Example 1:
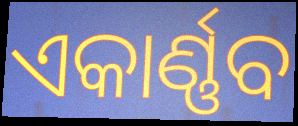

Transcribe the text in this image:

ଏକାର୍ଣ୍ଣବ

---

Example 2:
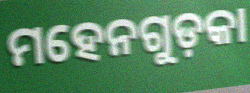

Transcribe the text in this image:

ମହେନଗୁଡ଼କା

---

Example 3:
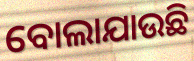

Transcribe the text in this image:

ବୋଲାଯାଉଛି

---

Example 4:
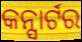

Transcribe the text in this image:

କନ୍ସାର୍ଟର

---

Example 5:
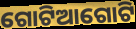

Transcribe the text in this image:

ଗୋଟିଆଗୋଟି